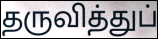
தருவித்துப்